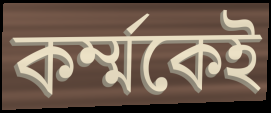
কর্ম্মকেই